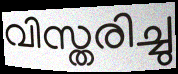
വിസ്തരിച്ചു